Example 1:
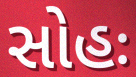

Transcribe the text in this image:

સોહઃ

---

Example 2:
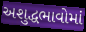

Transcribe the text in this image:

અશુદ્ધભાવોમાં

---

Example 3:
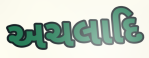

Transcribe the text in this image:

અચલાદિ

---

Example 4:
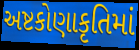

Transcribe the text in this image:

અષ્ટકોણાકૃતિમાં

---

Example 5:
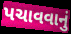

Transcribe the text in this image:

પચાવવાનું